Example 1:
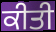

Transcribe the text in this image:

ਕੀਤੀ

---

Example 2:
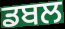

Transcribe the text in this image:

ਡਬਲ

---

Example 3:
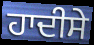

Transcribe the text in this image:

ਹਾਦੀਸੇ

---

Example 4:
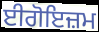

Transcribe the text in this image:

ਈਗੋਇਜ਼ਮ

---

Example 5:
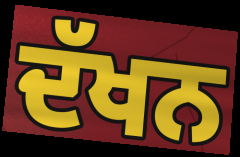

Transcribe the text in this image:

ਦੱਖਨ